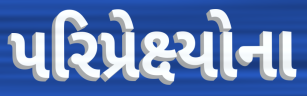
પરિપ્રેક્ષ્યોના